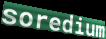
soredium